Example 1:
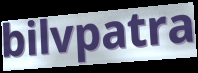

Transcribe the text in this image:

bilvpatra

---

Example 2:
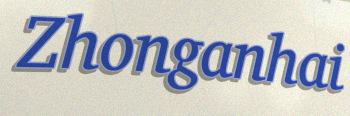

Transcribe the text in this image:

Zhonganhai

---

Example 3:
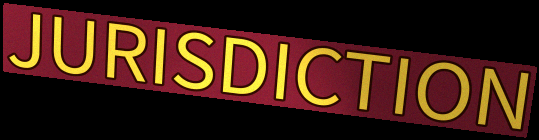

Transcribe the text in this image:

JURISDICTION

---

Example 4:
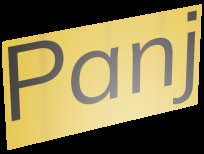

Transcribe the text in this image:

Panj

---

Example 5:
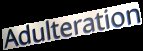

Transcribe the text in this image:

Adulteration